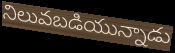
నిలువబడియున్నాడు